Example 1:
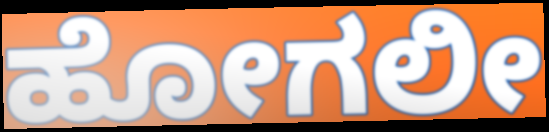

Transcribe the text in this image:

ಹೋಗಲೀ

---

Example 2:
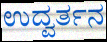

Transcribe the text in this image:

ಉದ್ವರ್ತನ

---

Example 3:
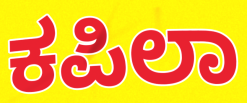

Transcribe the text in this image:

ಕಪಿಲಾ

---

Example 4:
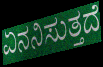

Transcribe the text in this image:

ಏನನಿಸುತ್ತದೆ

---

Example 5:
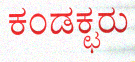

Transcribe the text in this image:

ಕಂಡಕ್ಟರು